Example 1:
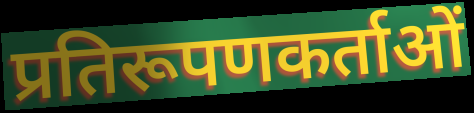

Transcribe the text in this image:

प्रतिरूपणकर्ताओं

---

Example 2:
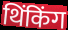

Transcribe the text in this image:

थिंकिंग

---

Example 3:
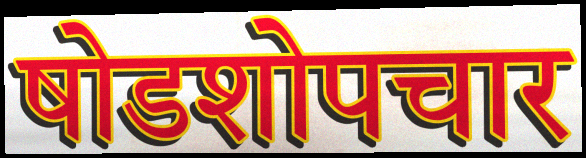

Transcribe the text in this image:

षोडशोपचार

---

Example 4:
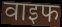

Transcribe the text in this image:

वाइफ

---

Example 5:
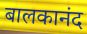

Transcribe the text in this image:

बालकानंद